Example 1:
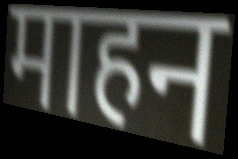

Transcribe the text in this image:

माहन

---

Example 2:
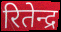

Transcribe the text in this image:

रितेन्द्र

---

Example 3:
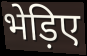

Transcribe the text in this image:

भेड़िए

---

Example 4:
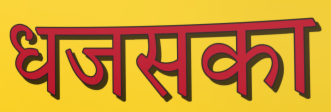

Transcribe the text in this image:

धजसका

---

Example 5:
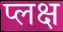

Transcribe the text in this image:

प्लक्ष